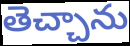
తెచ్చాను